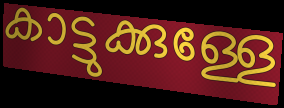
കാട്ടുക്കുള്ളേ